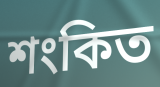
শংকিত